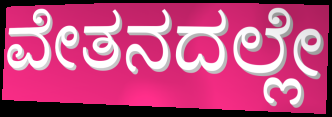
ವೇತನದಲ್ಲೇ